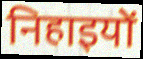
निहाइयों